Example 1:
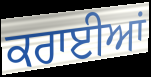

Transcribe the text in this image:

ਕਰਾਈਆਂ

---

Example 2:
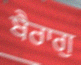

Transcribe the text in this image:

ਬੈਰਾਗੁ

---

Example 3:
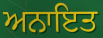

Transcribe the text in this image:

ਅਨਾਇਤ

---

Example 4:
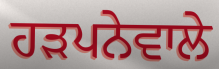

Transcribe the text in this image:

ਹੜਪਨੇਵਾਲੇ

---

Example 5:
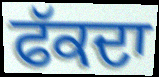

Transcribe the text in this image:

ਫੱਕਦਾ